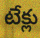
టేక్లు